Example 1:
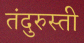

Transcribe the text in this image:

तंदुरुस्ती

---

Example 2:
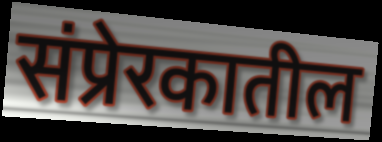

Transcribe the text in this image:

संप्रेरकातील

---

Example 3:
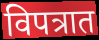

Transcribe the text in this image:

विपत्रात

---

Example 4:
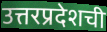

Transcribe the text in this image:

उत्तरप्रदेशची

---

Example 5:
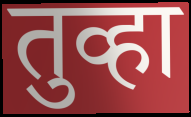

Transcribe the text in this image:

तुव्हा